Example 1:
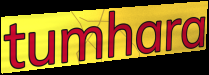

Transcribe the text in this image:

tumhara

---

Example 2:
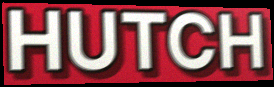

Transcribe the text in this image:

HUTCH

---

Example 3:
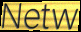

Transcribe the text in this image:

Netw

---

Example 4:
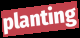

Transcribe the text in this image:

planting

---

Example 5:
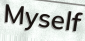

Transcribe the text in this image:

Myself